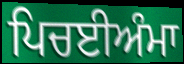
ਪਿਚਈਅੰਮਾ